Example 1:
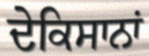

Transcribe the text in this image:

ਦੇਕਿਸਾਨਾਂ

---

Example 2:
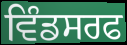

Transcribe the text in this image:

ਵਿੰਡਸਰਫ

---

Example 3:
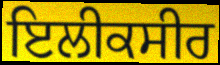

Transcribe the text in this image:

ਇਲੀਕਸੀਰ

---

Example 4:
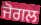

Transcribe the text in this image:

ਜੋਗਲ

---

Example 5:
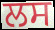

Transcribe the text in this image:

ਲਸ